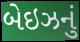
બેઇઝનું